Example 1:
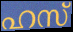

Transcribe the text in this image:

ഹസ്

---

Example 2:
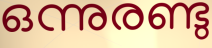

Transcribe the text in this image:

ഒന്നുരണ്ടു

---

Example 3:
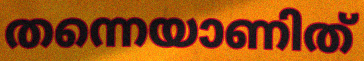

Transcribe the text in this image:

തന്നെയാണിത്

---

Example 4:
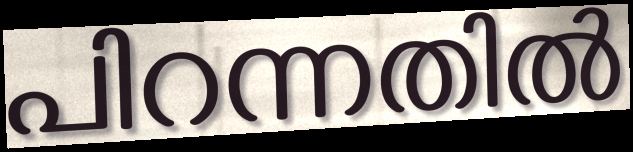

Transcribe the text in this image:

പിറന്നതിൽ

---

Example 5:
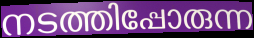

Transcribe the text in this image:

നടത്തിപ്പോരുന്ന